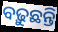
ବଢ଼ୁଛନ୍ତି